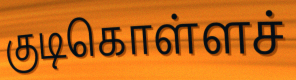
குடிகொள்ளச்